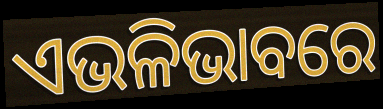
ଏଭଳିଭାବରେ